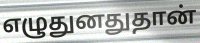
எழுதுனதுதான்